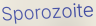
Sporozoite